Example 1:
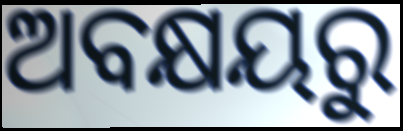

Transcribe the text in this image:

ଅବକ୍ଷୟରୁ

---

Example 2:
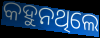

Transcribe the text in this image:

କହୁନଥିଲେ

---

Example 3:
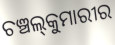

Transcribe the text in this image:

ଚଞ୍ଚଲ୍‍କୁମାରୀର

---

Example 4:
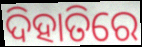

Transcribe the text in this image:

ଦିହାତିରେ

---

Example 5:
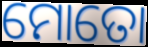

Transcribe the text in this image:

ମୋତୋ